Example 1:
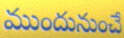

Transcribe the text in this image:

ముందునుంచే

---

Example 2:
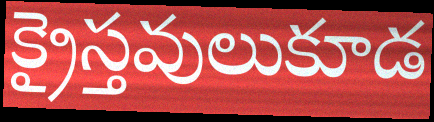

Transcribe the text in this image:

క్రైస్తవులుకూడ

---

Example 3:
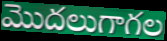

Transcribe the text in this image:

మొదలుగాగల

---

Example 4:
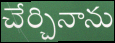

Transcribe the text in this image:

చేర్చినాను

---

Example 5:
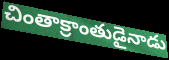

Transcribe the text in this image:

చింతాక్రాంతుడైనాడు